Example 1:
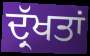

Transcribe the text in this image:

ਦ੍ਰੱਖਤਾਂ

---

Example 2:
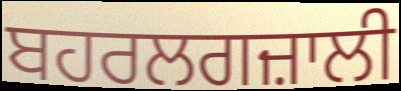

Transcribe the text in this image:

ਬਹਰਲਗਜ਼ਾਲੀ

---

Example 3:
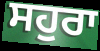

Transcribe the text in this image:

ਸਹੁਰਾ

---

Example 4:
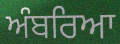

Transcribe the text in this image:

ਅੰਬਰਿਆ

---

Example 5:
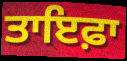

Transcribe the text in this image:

ਤਾਇਫ਼ਾ